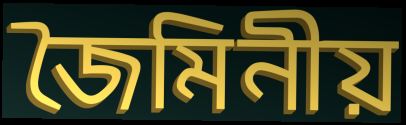
জৈমিনীয়